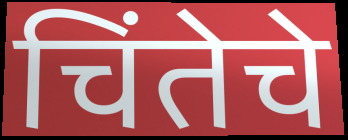
चिंतेचे